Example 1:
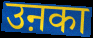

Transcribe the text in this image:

उऩका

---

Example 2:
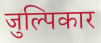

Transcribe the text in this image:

जुल्पिकार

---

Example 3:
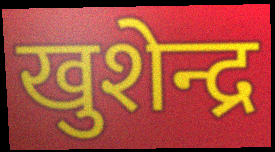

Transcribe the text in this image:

खुशेन्द्र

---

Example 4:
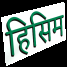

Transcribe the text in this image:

हिसिम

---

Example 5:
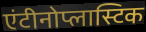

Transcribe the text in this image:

एंटीनोप्लास्टिक